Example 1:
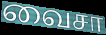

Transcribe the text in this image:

வைசா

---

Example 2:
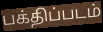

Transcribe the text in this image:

பக்திப்படம்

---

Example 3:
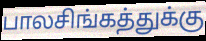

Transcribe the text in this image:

பாலசிங்கத்துக்கு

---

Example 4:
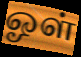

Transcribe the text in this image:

ஓள்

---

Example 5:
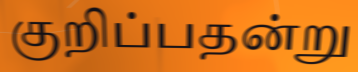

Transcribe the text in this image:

குறிப்பதன்று